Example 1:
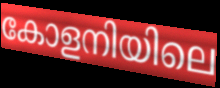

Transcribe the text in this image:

കോളനിയിലെ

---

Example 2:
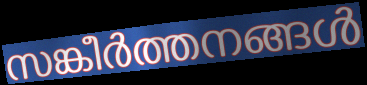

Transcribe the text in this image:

സങ്കീർത്തനങ്ങൾ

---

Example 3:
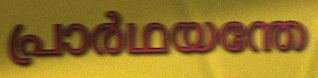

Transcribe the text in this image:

പ്രാർഥയന്തേ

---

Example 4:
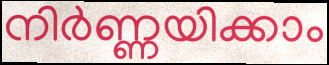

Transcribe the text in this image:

നിർണ്ണയിക്കാം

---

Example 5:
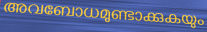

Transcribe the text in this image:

അവബോധമുണ്ടാക്കുകയും